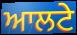
ਆਲਟੇ